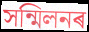
সন্মিলনৰ